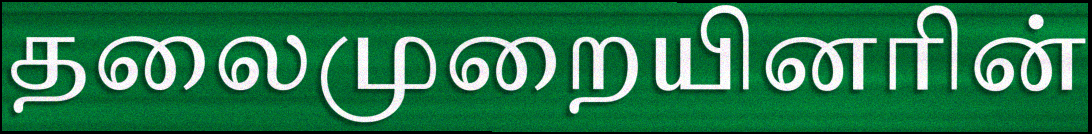
தலைமுறையினரின்